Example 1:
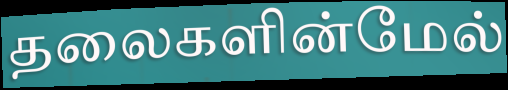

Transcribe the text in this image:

தலைகளின்மேல்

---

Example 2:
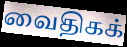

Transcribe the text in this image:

வைதிகக்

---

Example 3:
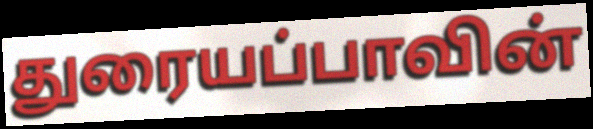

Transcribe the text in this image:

துரையப்பாவின்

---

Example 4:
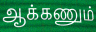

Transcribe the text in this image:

ஆக்கணும்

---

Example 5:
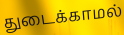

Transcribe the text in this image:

துடைக்காமல்